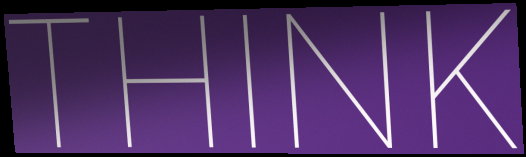
THINK